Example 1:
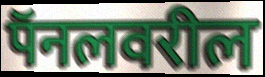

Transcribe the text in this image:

पॅनलवरील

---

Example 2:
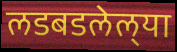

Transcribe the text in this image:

लडबडलेल्या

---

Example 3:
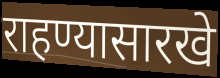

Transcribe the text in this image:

राहण्यासारखे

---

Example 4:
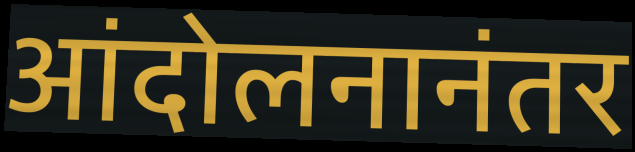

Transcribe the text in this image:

आंदोलनानंतर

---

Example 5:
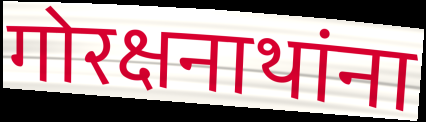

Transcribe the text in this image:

गोरक्षनाथांना